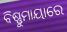
ବିଷ୍ଣୁମାୟାରେ